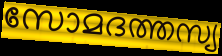
സോമദത്തസ്യ